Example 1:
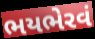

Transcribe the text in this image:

ભયભેરવં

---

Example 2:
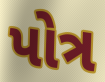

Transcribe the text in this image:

પોત્ર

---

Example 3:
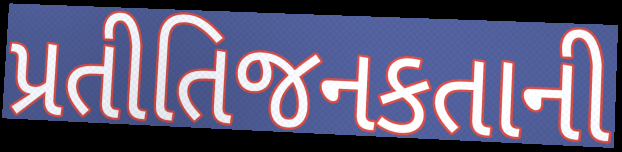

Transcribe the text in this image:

પ્રતીતિજનકતાની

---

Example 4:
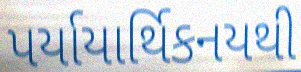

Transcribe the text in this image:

પર્યાયાર્થિકનયથી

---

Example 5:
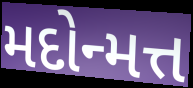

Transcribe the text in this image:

મદોન્મત્ત